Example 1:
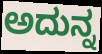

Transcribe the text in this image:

ಅದುನ್ನ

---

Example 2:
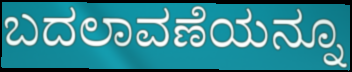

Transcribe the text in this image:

ಬದಲಾವಣೆಯನ್ನೂ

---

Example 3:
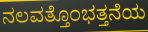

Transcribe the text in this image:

ನಲವತ್ತೊಂಭತ್ತನೆಯ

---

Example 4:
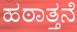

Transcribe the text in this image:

ಹಠಾತ್ತನೆ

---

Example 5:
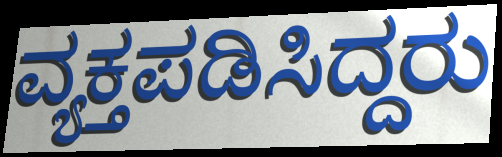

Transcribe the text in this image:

ವ್ಯಕ್ತಪಡಿಸಿದ್ದರು